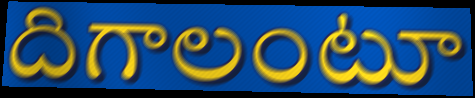
దిగాలంటూ